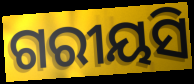
ଗରୀୟସି